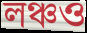
লঞ্চও